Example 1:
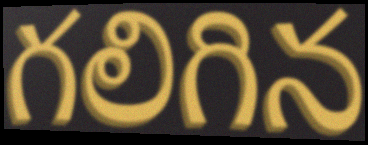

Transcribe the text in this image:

గలిగిన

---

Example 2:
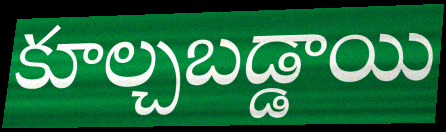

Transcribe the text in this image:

కూల్చబడ్డాయి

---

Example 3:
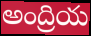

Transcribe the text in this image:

అంద్రియ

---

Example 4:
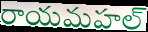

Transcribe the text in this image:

రాయమహల్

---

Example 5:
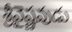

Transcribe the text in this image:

శ్రీవైష్ణవుడు